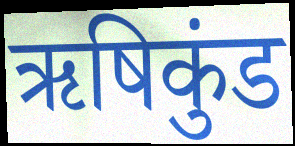
ऋषिकुंड